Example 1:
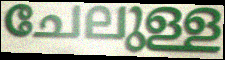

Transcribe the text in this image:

ചേലുള്ള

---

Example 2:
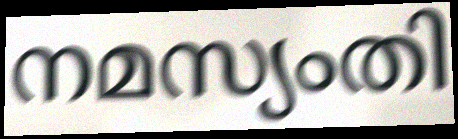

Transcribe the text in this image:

നമസ്യംതി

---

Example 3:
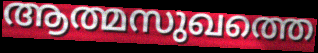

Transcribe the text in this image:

ആത്മസുഖത്തെ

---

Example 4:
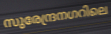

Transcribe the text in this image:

സുരേന്ദ്രനഗറിലെ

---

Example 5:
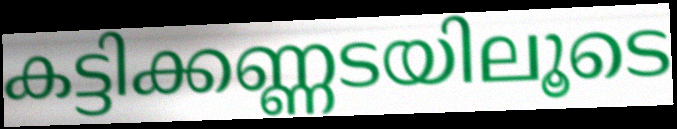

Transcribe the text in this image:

കട്ടിക്കണ്ണടയിലൂടെ